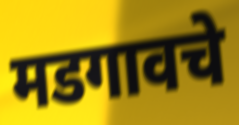
मडगावचे